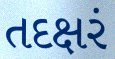
તદક્ષરં